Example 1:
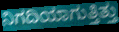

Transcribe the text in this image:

ನಿಗದಿಯಾಗುತ್ತಿತ್ತು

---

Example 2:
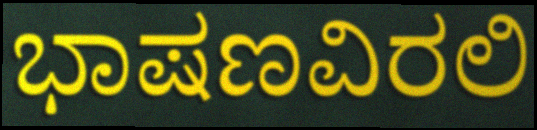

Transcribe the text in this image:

ಭಾಷಣವಿರಲಿ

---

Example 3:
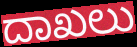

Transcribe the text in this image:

ದಾಖಲು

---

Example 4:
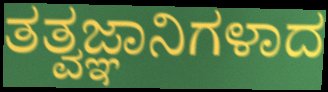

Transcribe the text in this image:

ತತ್ವಜ್ಞಾನಿಗಳಾದ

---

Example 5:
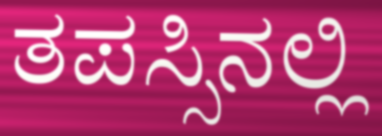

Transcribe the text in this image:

ತಪಸ್ಸಿನಲ್ಲಿ